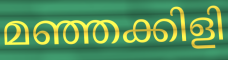
മഞ്ഞക്കിളി